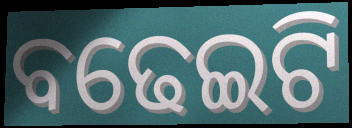
ବଢେଇଟି